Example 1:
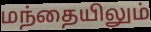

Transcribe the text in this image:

மந்தையிலும்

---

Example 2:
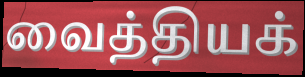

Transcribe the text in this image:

வைத்தியக்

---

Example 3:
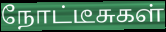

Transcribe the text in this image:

நோட்டீசுகள்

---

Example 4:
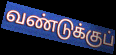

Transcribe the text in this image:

வண்டுக்குப்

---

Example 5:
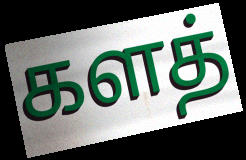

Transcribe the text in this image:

களத்